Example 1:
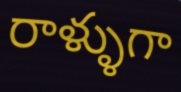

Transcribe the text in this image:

రాళ్ళుగా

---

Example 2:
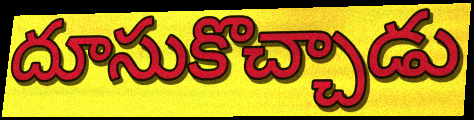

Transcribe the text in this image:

దూసుకొచ్చాడు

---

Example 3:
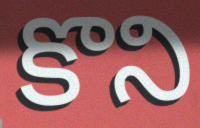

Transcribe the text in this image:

కొని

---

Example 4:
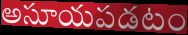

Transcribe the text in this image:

అసూయపడటం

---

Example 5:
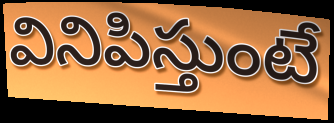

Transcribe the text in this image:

వినిపిస్తుంటే